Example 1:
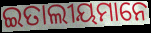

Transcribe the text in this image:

ଇତାଲୀୟମାନେ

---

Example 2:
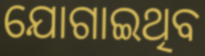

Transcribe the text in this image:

ଯୋଗାଇଥିବ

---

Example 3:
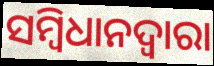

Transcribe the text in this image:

ସମ୍ବିଧାନଦ୍ବାରା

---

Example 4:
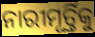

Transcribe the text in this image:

ନାରୀମୂର୍ତ୍ତିକୁ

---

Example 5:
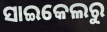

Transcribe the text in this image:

ସାଇକେଲରୁ